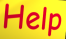
Help